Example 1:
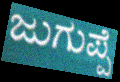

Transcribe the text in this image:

ಜುಗುಪ್ಪೆ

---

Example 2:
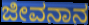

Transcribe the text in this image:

ಜೀವನಾನ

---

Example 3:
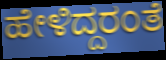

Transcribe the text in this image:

ಹೇಳಿದ್ದರಂತೆ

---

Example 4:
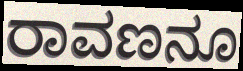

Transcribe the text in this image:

ರಾವಣನೂ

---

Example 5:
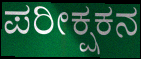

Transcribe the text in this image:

ಪರೀಕ್ಷಕನ